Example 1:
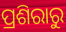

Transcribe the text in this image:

ପ୍ରଶିରାରୁ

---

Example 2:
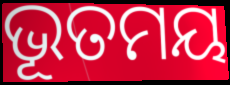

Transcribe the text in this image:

ଭୂତମୟ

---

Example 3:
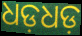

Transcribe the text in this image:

ଧଡ଼ଧଡ଼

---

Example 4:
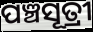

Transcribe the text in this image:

ପଞ୍ଚସୂତ୍ରୀ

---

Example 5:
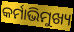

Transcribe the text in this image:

କର୍ମାଭିମୁଖ୍ୟ